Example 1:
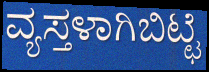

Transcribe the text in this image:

ವ್ಯಸ್ತಳಾಗಿಬಿಟ್ಟೆ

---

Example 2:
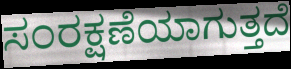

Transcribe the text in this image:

ಸಂರಕ್ಷಣೆಯಾಗುತ್ತದೆ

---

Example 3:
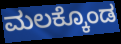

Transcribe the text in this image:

ಮಲಕ್ಕೊಂಡ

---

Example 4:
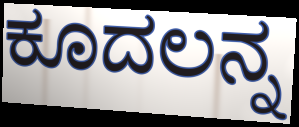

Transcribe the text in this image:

ಕೂದಲನ್ನ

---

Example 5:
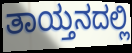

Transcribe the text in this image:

ತಾಯ್ತನದಲ್ಲಿ